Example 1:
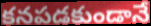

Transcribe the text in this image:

కనపడకుండానే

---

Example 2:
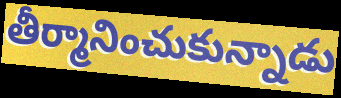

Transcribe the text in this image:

తీర్మానించుకున్నాడు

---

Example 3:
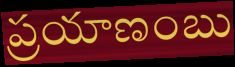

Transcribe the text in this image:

ప్రయాణంబు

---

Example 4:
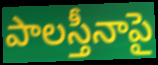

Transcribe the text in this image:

పాలస్తీనాపై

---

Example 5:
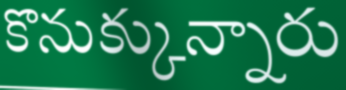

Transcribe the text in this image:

కొనుక్కున్నారు